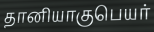
தானியாகுபெயர்